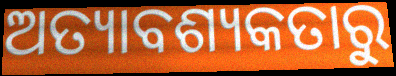
ଅତ୍ୟାବଶ୍ୟକତାରୁ